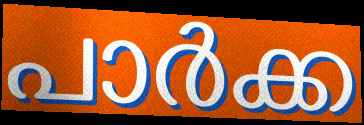
പാർക്ക